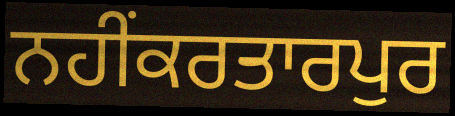
ਨਹੀਂਕਰਤਾਰਪੁਰ